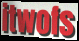
itwofs